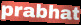
prabhat